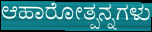
ಆಹಾರೋತ್ಪನ್ನಗಳು